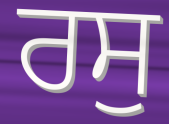
ਰਸੁ